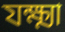
যক্ষ্মা